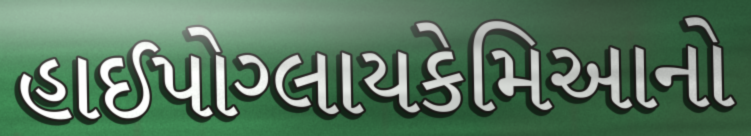
હાઈપોગ્લાયકેમિઆનો